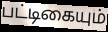
பட்டிகையும்